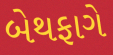
બેથફાગે